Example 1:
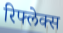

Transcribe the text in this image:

रिफ्लेक्स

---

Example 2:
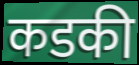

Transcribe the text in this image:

कडकी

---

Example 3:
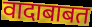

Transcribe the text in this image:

वादाबाबत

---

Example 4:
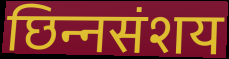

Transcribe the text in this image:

छिन्नसंशय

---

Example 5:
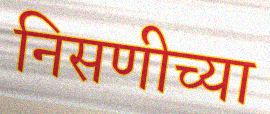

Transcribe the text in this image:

निसणीच्या